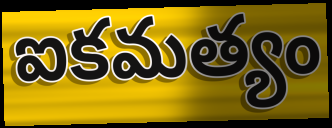
ఐకమత్యం